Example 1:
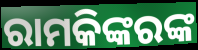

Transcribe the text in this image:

ରାମକିଙ୍କରଙ୍କ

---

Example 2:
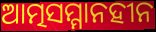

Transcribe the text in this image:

ଆତ୍ମସମ୍ମାନହୀନ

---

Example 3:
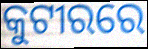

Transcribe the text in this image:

କୁଟୀରରେ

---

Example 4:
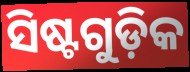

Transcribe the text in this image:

ସିଷ୍ଟଗୁଡ଼ିକ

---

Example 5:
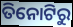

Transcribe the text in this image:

ତିନୋଟିରୁ